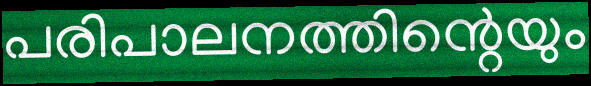
പരിപാലനത്തിന്റെയും